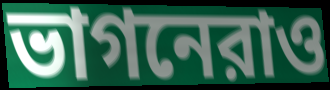
ভাগনেরাও